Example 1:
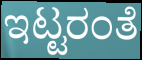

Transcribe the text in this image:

ಇಟ್ಟರಂತೆ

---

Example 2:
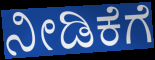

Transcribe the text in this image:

ನೀಡಿಕೆಗೆ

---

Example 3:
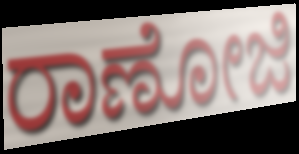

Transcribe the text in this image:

ರಾಣೋಜಿ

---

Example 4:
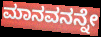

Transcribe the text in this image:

ಮಾನವನನ್ನೇ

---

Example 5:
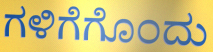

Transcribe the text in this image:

ಗಳಿಗೆಗೊಂದು